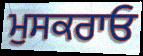
ਮੁਸਕਰਾਓ